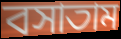
বসাতাম